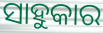
ସାହୁକାର